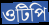
ওটিপি